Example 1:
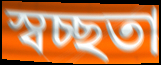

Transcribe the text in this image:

স্বচ্ছতা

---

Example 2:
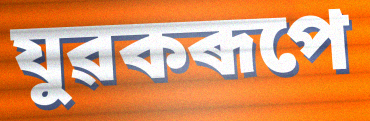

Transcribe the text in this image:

যুৱকৰূপে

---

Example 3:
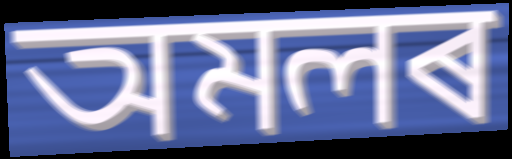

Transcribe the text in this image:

অমলৰ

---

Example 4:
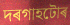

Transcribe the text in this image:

দৰগাহটোৰ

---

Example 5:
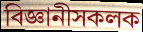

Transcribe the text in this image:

বিজ্ঞানীসকলক